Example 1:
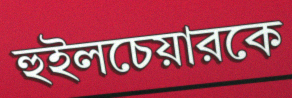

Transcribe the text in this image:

হুইলচেয়ারকে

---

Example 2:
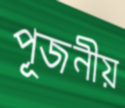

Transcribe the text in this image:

পূজনীয়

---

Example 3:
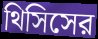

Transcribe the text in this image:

থিসিসের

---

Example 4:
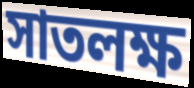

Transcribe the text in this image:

সাতলক্ষ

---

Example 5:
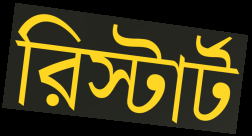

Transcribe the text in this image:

রিস্টার্ট